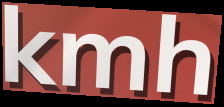
kmh